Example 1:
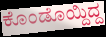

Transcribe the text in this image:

ಕೊಂಡೊಯ್ದಿದ್ದ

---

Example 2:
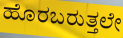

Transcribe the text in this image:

ಹೊರಬರುತ್ತಲೇ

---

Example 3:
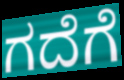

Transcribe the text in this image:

ಗದೆಗೆ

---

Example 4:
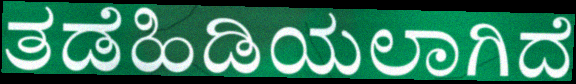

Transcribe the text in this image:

ತಡೆಹಿಡಿಯಲಾಗಿದೆ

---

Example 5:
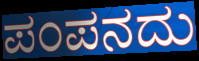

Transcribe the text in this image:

ಪಂಪನದು